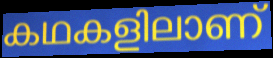
കഥകളിലാണ്